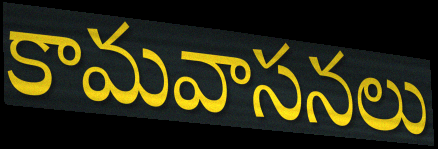
కామవాసనలు